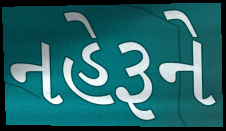
નહેરૂને